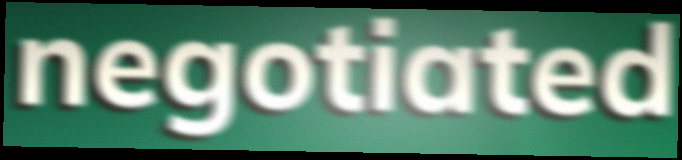
negotiated